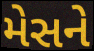
મેસને